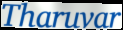
Tharuvar